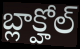
బ్లాక్హోల్